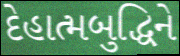
દેહાત્મબુદ્ધિને